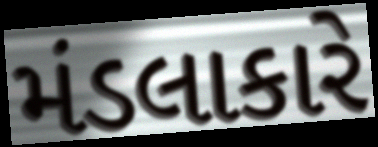
મંડલાકારે